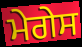
ਮੇਗੇਸ